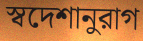
স্বদেশানুরাগ